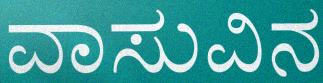
ವಾಸುವಿನ